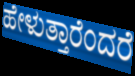
ಹೇಳುತ್ತಾರೆಂದರೆ